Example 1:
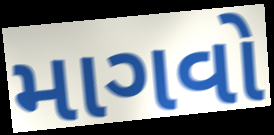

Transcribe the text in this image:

માગવો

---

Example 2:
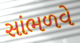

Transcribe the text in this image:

સાંભળવે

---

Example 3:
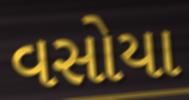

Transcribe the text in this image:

વસોયા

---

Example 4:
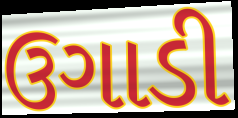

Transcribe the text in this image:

ઉગાડી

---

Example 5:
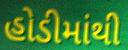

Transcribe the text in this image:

હોડીમાંથી